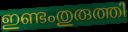
ഇണ്ടംതുരുത്തി